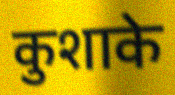
कुशाके